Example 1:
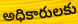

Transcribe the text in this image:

అధికారులకు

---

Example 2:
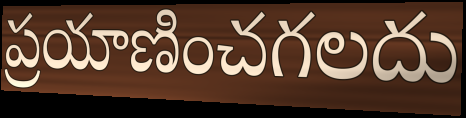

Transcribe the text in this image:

ప్రయాణించగలదు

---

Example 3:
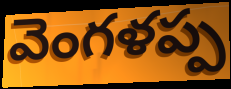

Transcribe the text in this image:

వెంగళప్ప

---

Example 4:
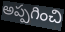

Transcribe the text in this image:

అప్పగించి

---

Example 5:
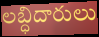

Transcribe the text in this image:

లబ్ధిదారులు